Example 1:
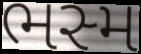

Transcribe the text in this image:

ભસ્મ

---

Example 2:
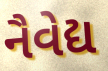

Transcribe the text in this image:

નૈવેદ્ય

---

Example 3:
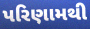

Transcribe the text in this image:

પરિણામથી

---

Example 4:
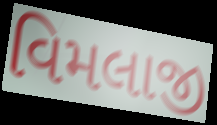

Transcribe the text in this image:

વિમલાજી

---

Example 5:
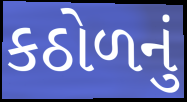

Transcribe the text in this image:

કઠોળનું